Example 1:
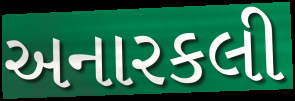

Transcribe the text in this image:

અનારકલી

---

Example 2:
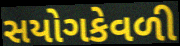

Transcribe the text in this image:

સયોગકેવળી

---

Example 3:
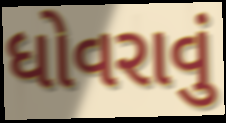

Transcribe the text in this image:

ધોવરાવું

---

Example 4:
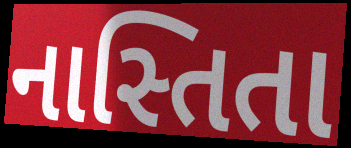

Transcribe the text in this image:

નાસ્તિતા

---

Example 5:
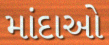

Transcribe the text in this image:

માંદાઓ